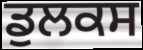
ਡੁਲਕਸ